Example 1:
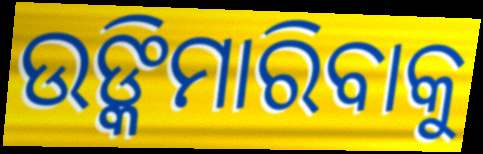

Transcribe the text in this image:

ଉଙ୍କିମାରିବାକୁ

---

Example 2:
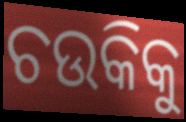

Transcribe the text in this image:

ଚଉକିକୁ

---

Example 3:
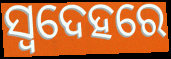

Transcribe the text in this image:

ସ୍ଵଦେହରେ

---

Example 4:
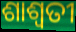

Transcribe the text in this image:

ଶାଶ୍ଵତୀ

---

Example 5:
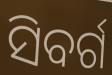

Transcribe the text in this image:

ସିବର୍ଗ